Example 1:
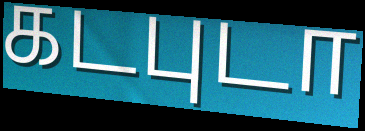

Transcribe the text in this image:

கடபுடா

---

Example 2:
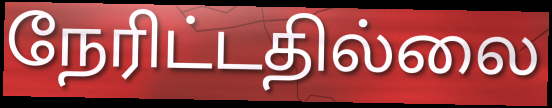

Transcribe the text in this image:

நேரிட்டதில்லை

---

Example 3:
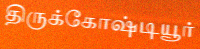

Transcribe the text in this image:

திருக்கோஷ்டியூர்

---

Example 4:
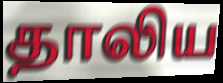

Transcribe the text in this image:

தாலிய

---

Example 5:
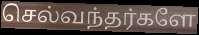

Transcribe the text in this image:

செல்வந்தர்களே